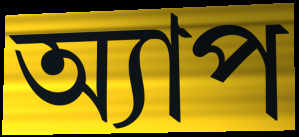
অ্যাপ